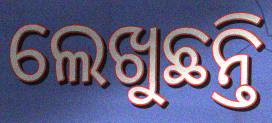
ଲେଖୁଛନ୍ତି